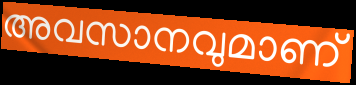
അവസാനവുമാണ്